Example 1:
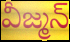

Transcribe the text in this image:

వీజ్మన్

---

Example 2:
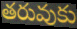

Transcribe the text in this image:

తరువుకు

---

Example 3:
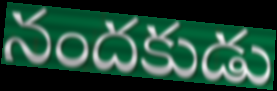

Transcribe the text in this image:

నందకుడు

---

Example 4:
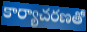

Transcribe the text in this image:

కార్యాచరణతో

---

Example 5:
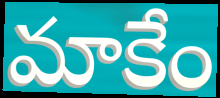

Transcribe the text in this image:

మాకేం